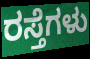
ರಸ್ತೆಗಳು